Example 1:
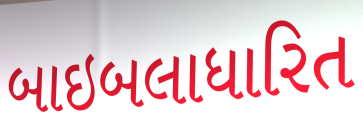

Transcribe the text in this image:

બાઇબલાધારિત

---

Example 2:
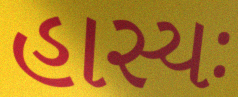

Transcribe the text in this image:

હાસ્યઃ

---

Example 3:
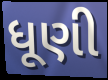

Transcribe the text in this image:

ધૂણી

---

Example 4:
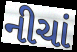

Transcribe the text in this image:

નીચાં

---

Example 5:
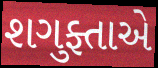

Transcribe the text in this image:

શગુફ્તાએ